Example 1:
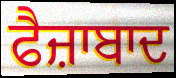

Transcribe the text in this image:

ਫੈਜ਼ਾਬਾਦ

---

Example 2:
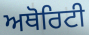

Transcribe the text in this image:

ਅਥੋਰਿਟੀ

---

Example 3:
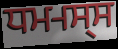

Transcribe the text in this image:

ਧਮ੍ਮਸ੍ਸ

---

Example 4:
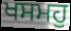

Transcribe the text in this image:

ਖਸਮਹੁ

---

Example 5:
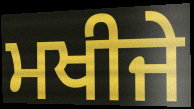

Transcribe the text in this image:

ਮਖੀਜੇ